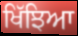
ਖਿੱਝਿਆ